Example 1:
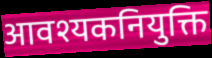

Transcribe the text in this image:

आवश्यकनियुक्ति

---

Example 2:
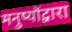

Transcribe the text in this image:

मनुष्योंद्वारा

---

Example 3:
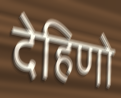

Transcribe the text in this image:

देहिणो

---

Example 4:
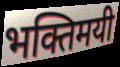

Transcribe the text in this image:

भक्तिमयी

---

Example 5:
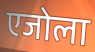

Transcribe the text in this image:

एजोला